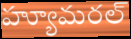
హ్యూమరల్